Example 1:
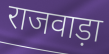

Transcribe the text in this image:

राजवाड़ा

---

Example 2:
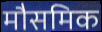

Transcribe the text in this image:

मौसमिक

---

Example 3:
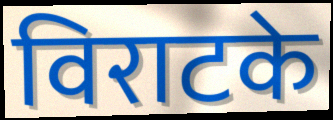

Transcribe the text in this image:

विराटके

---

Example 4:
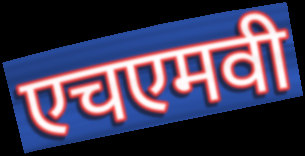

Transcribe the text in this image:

एचएमवी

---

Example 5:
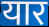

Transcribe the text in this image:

यार